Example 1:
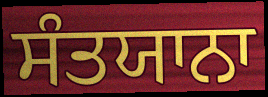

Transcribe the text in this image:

ਸੰਤਯਾਨਾ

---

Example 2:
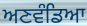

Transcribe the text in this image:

ਅਣਵੰਡਿਆ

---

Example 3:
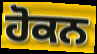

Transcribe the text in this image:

ਹੋਕਨ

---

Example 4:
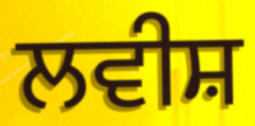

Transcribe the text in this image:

ਲਵੀਸ਼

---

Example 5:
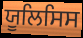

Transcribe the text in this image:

ਯੂਲਿਸਿਸ